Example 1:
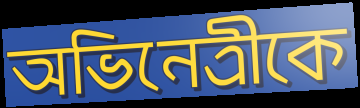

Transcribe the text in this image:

অভিনেত্রীকে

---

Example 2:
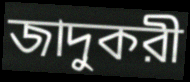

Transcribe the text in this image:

জাদুকরী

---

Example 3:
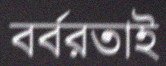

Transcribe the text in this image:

বর্বরতাই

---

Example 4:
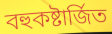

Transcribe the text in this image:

বহুকষ্টার্জিত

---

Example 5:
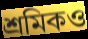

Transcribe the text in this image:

শ্রমিকও